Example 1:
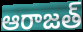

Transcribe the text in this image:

ఆరాజత్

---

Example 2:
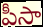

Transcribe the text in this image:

పీసా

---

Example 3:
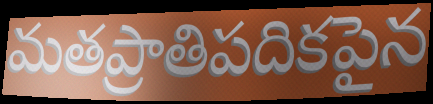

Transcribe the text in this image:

మతప్రాతిపదికపైన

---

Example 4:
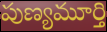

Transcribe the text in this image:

పుణ్యమూర్తి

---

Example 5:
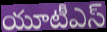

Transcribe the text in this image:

యూటీఎస్